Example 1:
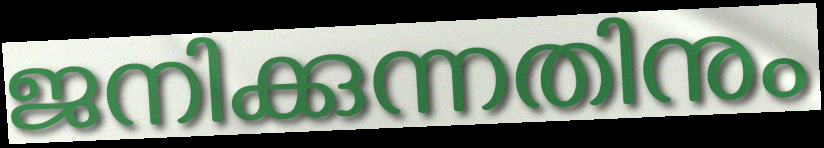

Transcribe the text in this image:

ജനിക്കുന്നതിനും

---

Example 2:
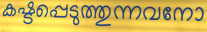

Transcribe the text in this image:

കഷ്ടപ്പെടുത്തുന്നവനോ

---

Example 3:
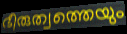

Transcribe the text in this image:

ഭീരുത്വത്തെയും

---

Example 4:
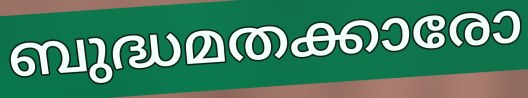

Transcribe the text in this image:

ബുദ്ധമതക്കാരോ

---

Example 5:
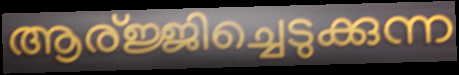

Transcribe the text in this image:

ആര്ജ്ജിച്ചെടുക്കുന്ന